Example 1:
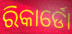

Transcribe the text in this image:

ରିକାର୍ଡୋ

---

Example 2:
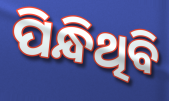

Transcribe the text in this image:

ପିନ୍ଧିଥିବି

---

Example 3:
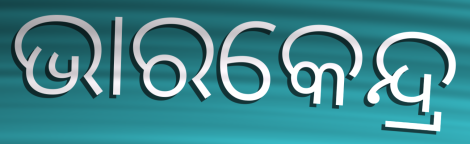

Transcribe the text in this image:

ଭାରକେନ୍ଦ୍ର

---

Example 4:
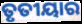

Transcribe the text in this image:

ତୃତୀୟାର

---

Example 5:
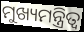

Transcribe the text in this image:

ମୁଖ୍ୟମନ୍ତ୍ରିତ୍ୱ